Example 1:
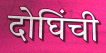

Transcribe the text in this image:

दोघिंची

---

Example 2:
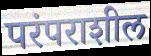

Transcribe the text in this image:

परंपराशील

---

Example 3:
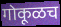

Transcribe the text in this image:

गोकूळच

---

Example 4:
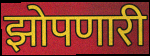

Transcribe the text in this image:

झोपणारी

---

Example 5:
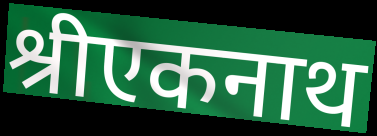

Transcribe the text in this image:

श्रीएकनाथ